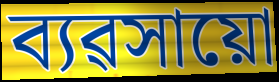
ব্যৱসায়ো